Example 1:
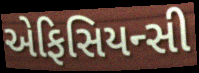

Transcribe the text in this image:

એફિસિયન્સી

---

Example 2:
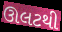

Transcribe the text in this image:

ઊલટથી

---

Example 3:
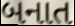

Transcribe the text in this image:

બનાત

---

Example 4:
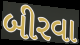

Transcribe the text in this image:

બીરવા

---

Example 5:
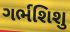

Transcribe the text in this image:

ગર્ભશિશુ